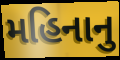
મહિનાનુ